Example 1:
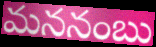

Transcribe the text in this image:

మననంబు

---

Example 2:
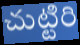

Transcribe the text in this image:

చుట్టిరి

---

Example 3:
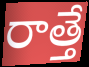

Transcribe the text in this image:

రాత్తే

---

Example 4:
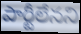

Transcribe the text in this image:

పార్టీలేనని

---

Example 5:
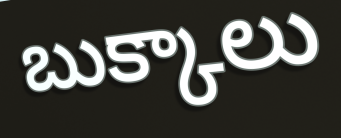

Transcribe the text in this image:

బుక్కాలు